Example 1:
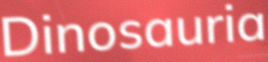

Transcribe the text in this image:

Dinosauria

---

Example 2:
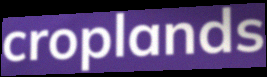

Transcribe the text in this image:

croplands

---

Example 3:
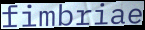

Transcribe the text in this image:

fimbriae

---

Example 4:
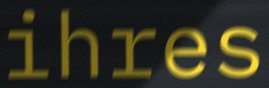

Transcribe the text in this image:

ihres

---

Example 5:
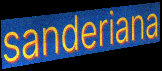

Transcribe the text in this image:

sanderiana